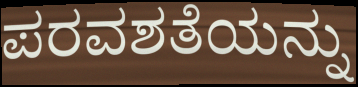
ಪರವಶತೆಯನ್ನು